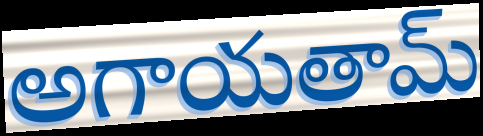
అగాయతామ్